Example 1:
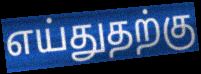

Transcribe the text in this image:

எய்துதற்கு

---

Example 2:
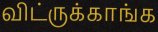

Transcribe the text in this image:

விட்ருக்காங்க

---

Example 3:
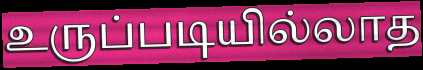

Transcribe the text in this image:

உருப்படியில்லாத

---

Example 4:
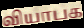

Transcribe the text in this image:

வியாபக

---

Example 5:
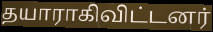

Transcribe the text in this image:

தயாராகிவிட்டனர்